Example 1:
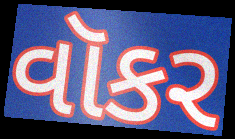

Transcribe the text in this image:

વૉકર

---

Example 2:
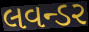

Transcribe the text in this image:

લવન્ડર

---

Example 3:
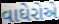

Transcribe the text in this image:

વાઘેરોએ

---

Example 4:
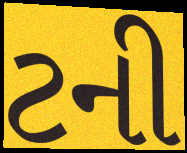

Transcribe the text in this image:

ટની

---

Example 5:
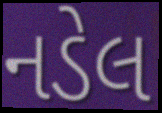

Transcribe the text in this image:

નડેલ